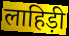
लाहिड़ी